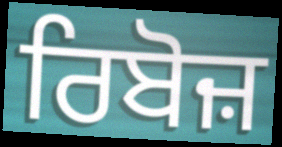
ਰਿਬੋਜ਼